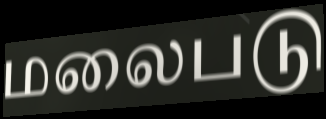
மலைபடு